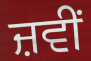
ਜ਼ਵੀਂ